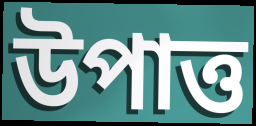
উপাত্ত